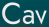
Cav